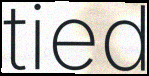
tied